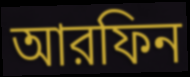
আরফিন